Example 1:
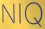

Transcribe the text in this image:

NIQ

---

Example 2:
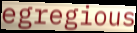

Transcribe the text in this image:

egregious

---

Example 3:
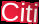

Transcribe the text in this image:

Citi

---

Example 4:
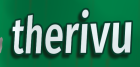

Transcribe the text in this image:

therivu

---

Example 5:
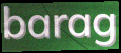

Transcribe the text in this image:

barag